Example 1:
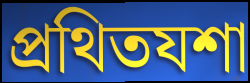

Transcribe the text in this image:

প্রথিতযশা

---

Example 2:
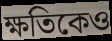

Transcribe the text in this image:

ক্ষতিকেও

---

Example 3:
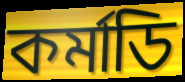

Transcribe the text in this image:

কর্মাডি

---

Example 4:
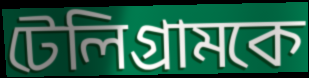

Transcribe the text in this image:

টেলিগ্রামকে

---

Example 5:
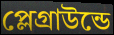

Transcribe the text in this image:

প্লেগ্রাউন্ডে